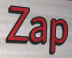
Zap